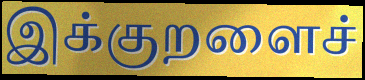
இக்குறளைச்